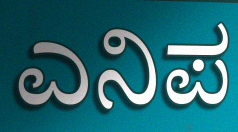
ಎನಿಪ